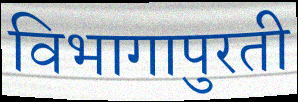
विभागापुरती